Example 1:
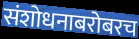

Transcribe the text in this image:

संशोधनाबरोबरच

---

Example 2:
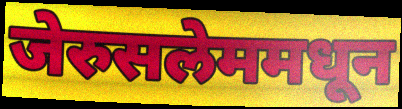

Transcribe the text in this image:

जेरुसलेममधून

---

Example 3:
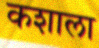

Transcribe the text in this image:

कशाला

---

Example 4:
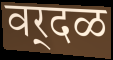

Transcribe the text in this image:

वर्दळ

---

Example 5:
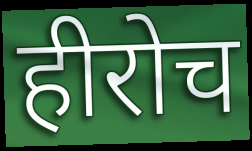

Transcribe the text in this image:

हीरोच